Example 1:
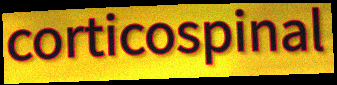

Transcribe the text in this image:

corticospinal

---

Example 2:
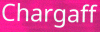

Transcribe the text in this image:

Chargaff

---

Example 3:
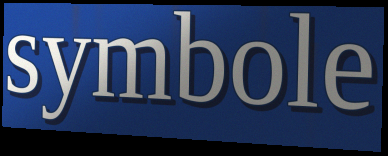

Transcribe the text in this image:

symbole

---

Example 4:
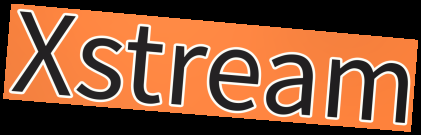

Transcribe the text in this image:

Xstream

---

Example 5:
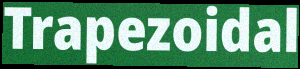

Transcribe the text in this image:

Trapezoidal